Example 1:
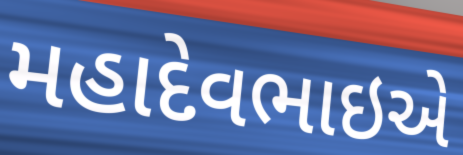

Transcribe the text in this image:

મહાદેવભાઇએ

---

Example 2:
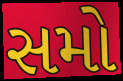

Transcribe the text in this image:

સમો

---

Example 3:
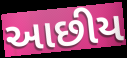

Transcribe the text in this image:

આછીય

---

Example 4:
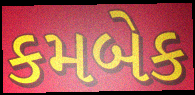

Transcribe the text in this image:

કમબેક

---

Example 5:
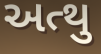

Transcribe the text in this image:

અત્થુ